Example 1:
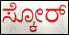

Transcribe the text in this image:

ಸ್ಕೋರ್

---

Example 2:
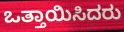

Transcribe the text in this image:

ಒತ್ತಾಯಿಸಿದರು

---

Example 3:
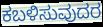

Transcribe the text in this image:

ಕಬಳಿಸುವುದರ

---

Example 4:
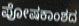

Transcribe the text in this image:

ಪೋಷಕಾಂಶದ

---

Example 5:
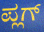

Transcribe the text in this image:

ಪ್ಲಗ್